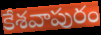
కేశవాపురం